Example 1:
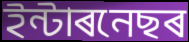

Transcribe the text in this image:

ইন্টাৰনেছৰ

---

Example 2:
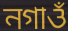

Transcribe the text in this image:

নগাওঁ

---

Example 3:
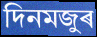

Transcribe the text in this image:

দিনমজুৰ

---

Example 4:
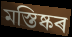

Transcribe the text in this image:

মস্তিষ্কৰ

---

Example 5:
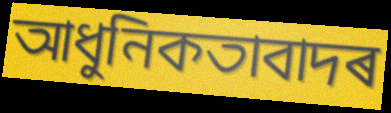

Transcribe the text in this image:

আধুনিকতাবাদৰ